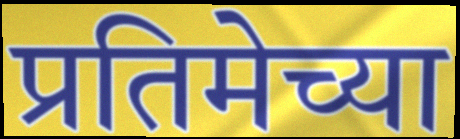
प्रतिमेच्या